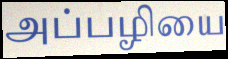
அப்பழியை